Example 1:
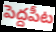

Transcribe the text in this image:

పెద్దపీట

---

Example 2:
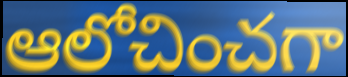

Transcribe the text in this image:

ఆలోచించగా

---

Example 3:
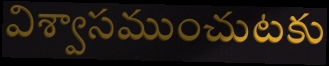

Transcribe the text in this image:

విశ్వాసముంచుటకు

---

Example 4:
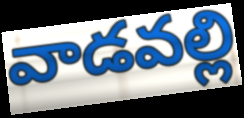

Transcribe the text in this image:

వాడవల్లి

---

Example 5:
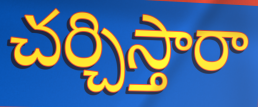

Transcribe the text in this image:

చర్చిస్తారా